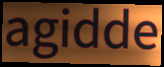
agidde